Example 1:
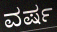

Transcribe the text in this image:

ವರ್ಷ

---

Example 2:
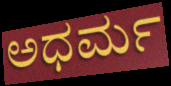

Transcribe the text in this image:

ಅಧರ್ಮ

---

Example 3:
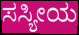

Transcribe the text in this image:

ಸಸ್ಯೀಯ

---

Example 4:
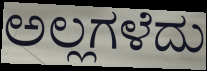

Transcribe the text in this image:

ಅಲ್ಲಗಳೆದು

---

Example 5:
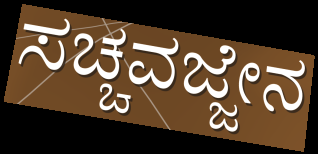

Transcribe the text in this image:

ಸಚ್ಚವಜ್ಜೇನ